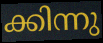
ക്കിന്നു